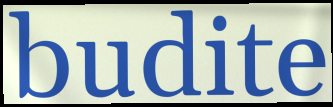
budite